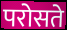
परोसते